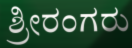
ಶ್ರೀರಂಗರು